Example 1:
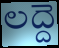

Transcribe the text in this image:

లద్దె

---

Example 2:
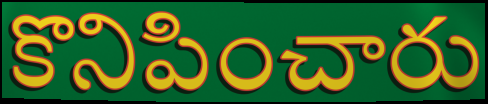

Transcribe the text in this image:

కొనిపించారు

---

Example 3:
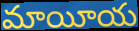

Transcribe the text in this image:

మాయీయ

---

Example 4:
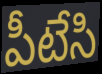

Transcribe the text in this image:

పీటేసి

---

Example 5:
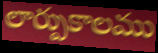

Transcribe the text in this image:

లార్పుకాలము